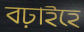
বঢ়াইহে